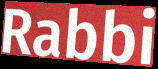
Rabbi